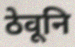
ठेवूनि